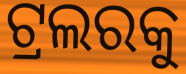
ଟ୍ରଲରକୁ